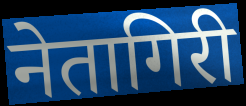
नेतागिरी